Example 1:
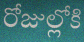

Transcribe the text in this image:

రోజుల్లోకి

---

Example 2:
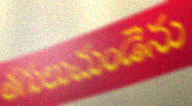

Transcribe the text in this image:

తగులుచుండెను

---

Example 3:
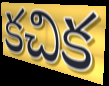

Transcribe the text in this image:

కచిక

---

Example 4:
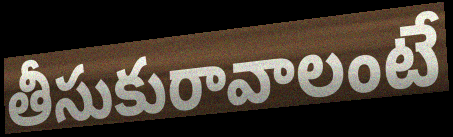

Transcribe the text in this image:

తీసుకురావాలంటే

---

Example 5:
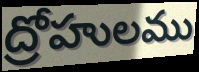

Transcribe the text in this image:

ద్రోహులము